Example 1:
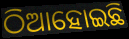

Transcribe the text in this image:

ଠିଆହୋଇଛି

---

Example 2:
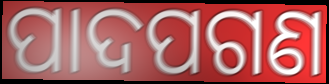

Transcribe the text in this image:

ପାଦପଗଣ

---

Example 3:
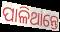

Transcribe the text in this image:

ପାଳିଥାନ୍ତେ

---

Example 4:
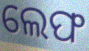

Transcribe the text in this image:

ଲେଫ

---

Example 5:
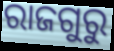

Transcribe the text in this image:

ରାଜଗୁରୁ